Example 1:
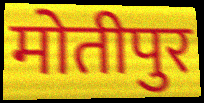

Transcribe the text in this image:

मोतीपुर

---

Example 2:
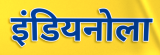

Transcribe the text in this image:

इंडियनोला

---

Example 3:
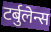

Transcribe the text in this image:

टर्बुलेन्स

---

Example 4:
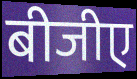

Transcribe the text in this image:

बीजीए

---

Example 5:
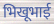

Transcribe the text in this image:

भिखूभाई